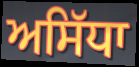
ਅਸਿੱਧਾ